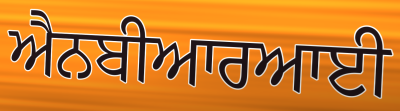
ਐਨਬੀਆਰਆਈ